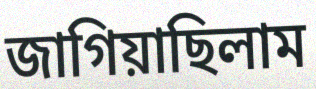
জাগিয়াছিলাম